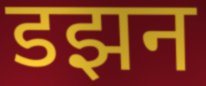
डझन